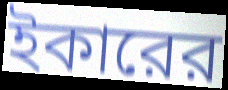
ইকারের